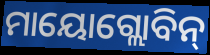
ମାୟୋଗ୍ଲୋବିନ୍